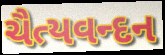
ચૈત્યવન્દન